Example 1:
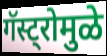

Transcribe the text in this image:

गॅस्ट्रोमुळे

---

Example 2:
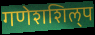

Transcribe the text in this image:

गणेशशिल्प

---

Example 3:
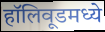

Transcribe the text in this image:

हॉलिवूडमध्ये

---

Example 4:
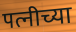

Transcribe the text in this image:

पत्नीच्या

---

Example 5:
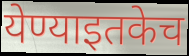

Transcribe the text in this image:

येण्याइतकेच